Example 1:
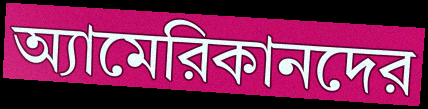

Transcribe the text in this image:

অ্যামেরিকানদের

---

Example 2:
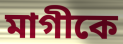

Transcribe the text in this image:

মাগীকে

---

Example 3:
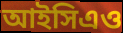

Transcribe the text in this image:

আইসিএও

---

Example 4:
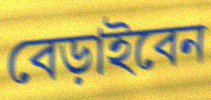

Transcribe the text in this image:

বেড়াইবেন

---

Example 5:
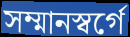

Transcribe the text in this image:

সম্মানস্বর্গে